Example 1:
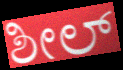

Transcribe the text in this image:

ಶೀಲ್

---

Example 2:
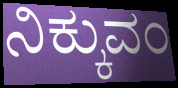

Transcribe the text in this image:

ನಿಕ್ಕುವಂ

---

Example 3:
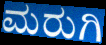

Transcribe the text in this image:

ಮರುಗಿ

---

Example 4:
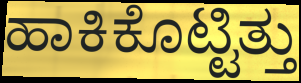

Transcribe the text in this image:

ಹಾಕಿಕೊಟ್ಟಿತ್ತು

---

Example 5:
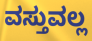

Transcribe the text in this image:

ವಸ್ತುವಲ್ಲ